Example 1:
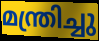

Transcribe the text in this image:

മന്ത്രിച്ചു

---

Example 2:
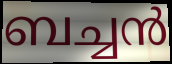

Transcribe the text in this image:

ബച്ചൻ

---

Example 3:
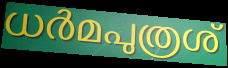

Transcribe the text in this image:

ധർമപുത്രശ്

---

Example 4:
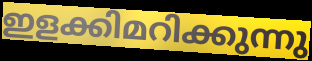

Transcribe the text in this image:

ഇളക്കിമറിക്കുന്നു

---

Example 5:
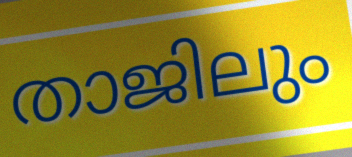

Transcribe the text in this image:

താജിലും